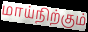
மாய்நிற்கும்